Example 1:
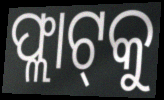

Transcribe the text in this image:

ଫ୍ଲାଟ୍‌କୁ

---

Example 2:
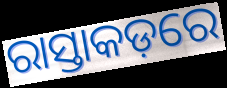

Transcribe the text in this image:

ରାସ୍ତାକଡ଼ରେ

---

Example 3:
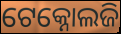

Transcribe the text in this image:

ଟେକ୍ନୋଲଜି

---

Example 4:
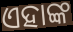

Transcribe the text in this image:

ଏହାଙ୍କ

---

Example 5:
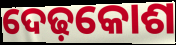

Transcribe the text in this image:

ଦେଢ଼କୋଶ